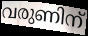
വരുണിന്